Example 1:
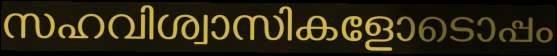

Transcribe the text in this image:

സഹവിശ്വാസികളോടൊപ്പം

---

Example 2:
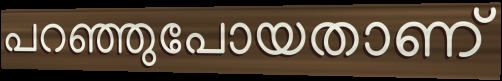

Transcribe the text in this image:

പറഞ്ഞുപോയതാണ്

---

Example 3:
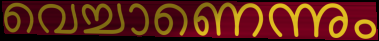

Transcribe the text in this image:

വെച്ചാണെന്നും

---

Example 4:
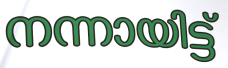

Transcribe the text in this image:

നന്നായിട്ട്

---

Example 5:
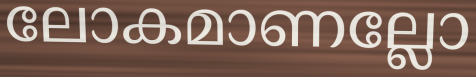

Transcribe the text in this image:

ലോകമാണല്ലോ